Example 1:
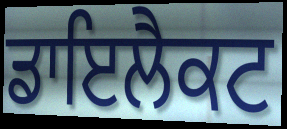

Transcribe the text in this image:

ਡਾਇਲੈਕਟ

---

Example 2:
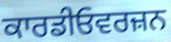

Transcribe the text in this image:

ਕਾਰਡੀਓਵਰਜ਼ਨ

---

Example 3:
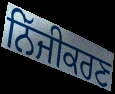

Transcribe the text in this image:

ਨਿੱਜੀਕਰਣ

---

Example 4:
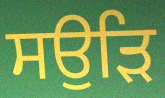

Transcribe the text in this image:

ਸਉੜਿ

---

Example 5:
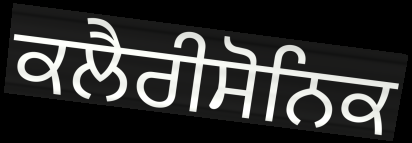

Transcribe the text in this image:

ਕਲੈਰੀਸੋਨਿਕ